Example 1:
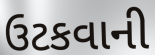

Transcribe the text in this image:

ઉટકવાની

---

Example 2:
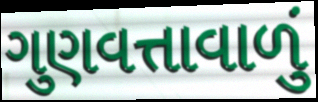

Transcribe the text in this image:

ગુણવત્તાવાળું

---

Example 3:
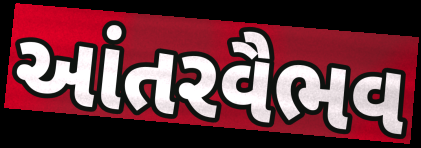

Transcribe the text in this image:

આંતરવૈભવ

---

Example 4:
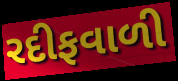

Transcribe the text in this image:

રદીફવાળી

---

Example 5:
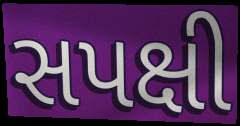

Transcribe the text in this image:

સપક્ષી